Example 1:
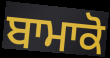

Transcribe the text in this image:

ਬਾਮਾਕੋ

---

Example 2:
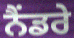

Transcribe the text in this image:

ਨੈਂਡਰੇ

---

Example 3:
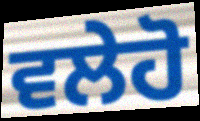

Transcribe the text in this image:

ਵਲੇਹੋ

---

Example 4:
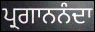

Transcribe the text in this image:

ਪ੍ਰਗਾਨਨੰਦਾ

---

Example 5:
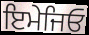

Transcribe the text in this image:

ਇਮੇਜਿਓ